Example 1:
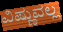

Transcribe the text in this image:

ವಿಷ್ಣುವಲ್ಲ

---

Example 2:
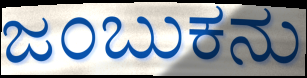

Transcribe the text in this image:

ಜಂಬುಕನು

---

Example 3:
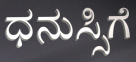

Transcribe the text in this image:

ಧನುಸ್ಸಿಗೆ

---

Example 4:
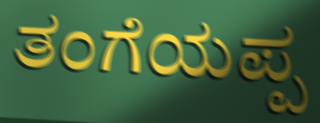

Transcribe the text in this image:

ತಂಗೆಯಪ್ಪ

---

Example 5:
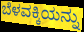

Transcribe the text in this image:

ಬೆಳವಕ್ಕಿಯನ್ನು